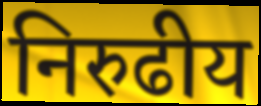
निरुढीय